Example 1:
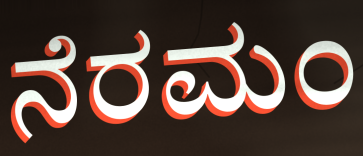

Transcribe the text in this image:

ನೆರಮಂ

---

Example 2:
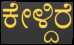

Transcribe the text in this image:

ಕೇಳ್ದಿರೆ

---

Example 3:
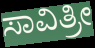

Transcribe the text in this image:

ಸಾವಿತ್ರೀ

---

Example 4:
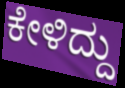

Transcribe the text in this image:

ಕೇಳಿದ್ದು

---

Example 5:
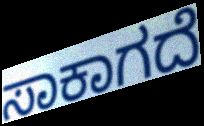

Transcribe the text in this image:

ಸಾಕಾಗದೆ